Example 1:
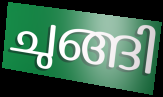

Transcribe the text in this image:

ചുങ്ങി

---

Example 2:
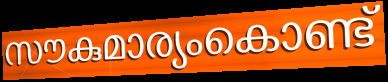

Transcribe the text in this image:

സൗകുമാര്യംകൊണ്ട്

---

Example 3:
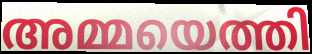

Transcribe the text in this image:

അമ്മയെത്തി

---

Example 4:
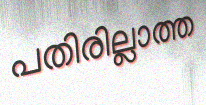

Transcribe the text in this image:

പതിരില്ലാത്ത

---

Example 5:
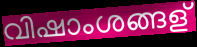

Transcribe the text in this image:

വിഷാംശങ്ങള്